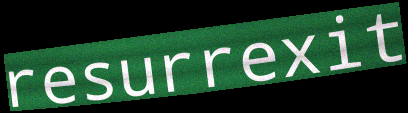
resurrexit